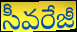
సీవరేజీ